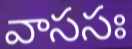
వాససః